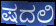
ಷದಲಿ